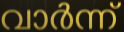
വാർന്ന്